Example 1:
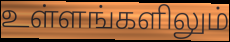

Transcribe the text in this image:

உள்ளங்களிலும்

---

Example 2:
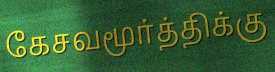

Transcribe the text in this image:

கேசவமூர்த்திக்கு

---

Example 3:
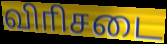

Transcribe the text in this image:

விரிசடை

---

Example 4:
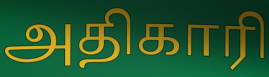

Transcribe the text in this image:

அதிகாரி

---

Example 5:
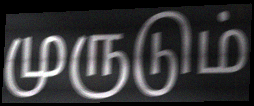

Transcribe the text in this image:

முருடும்